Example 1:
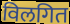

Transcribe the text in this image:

विलगित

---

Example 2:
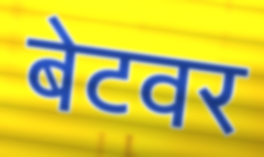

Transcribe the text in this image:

बेटवर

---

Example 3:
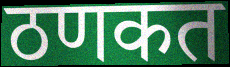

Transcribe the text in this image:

ठणकत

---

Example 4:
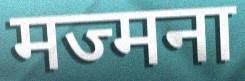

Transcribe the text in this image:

मज्मना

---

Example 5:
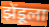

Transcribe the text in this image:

झेंडूला